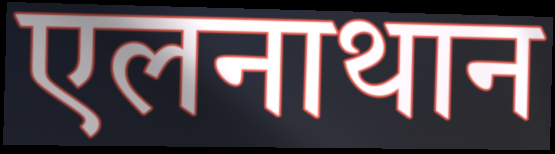
एलनाथान